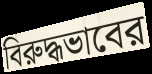
বিরুদ্ধভাবের